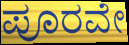
ಪೂರವೇ